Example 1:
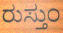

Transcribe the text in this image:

ರುಸ್ತುಂ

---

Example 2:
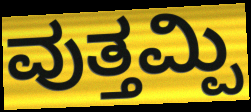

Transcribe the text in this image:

ವುತ್ತಮ್ಪಿ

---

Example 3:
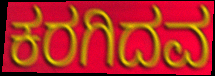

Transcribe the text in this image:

ಕರಗಿದವ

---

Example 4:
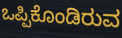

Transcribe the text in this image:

ಒಪ್ಪಿಕೊಂಡಿರುವ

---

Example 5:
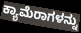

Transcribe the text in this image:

ಕ್ಯಾಮೆರಾಗಳನ್ನು